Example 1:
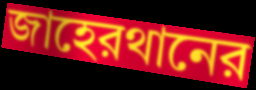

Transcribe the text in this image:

জাহেরথানের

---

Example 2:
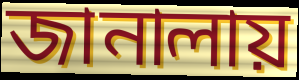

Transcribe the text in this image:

জানালায়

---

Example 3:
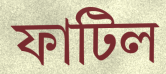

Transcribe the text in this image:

ফাটিল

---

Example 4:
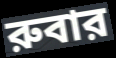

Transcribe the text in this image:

রুবার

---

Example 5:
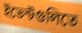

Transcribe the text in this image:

ইভেন্টগুলিতে